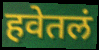
हवेतलं